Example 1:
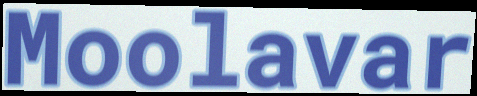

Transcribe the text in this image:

Moolavar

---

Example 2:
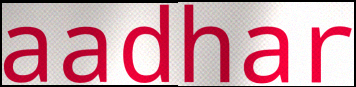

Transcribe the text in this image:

aadhar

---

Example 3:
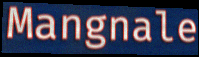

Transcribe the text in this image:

Mangnale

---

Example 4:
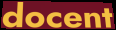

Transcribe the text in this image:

docent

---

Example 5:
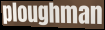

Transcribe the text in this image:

ploughman